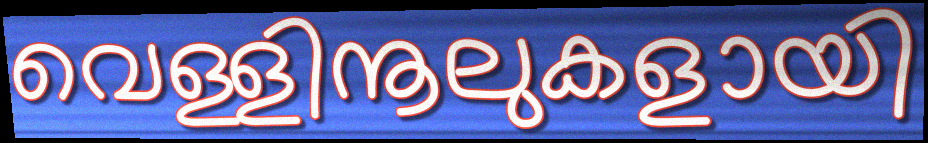
വെള്ളിനൂലുകളായി